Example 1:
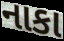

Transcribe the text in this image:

નાકા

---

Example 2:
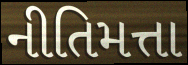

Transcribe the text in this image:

નીતિમત્તા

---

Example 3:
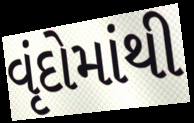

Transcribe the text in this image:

વૃંદોમાંથી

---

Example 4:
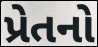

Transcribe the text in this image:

પ્રેતનો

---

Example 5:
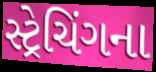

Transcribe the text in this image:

સ્ટ્રેચિંગના